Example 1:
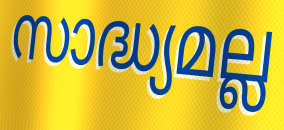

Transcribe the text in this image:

സാദ്ധ്യമല്ല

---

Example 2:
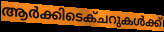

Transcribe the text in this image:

ആർക്കിടെക്ചറുകൾക്ക്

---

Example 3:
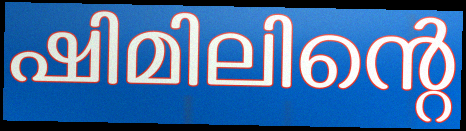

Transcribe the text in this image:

ഷിമിലിന്റെ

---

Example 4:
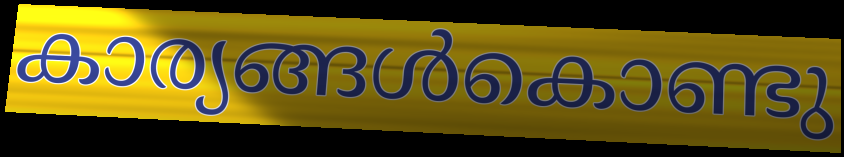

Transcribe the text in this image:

കാര്യങ്ങൾകൊണ്ടു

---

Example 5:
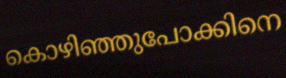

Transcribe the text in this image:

കൊഴിഞ്ഞുപോക്കിനെ